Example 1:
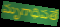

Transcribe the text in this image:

మృగాధిపతే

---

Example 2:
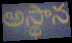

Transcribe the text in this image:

అస్థాన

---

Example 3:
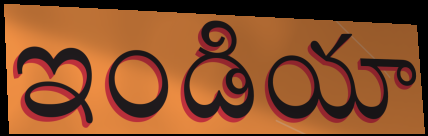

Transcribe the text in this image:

ఇండియా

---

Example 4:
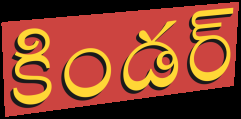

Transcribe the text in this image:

కిండర్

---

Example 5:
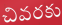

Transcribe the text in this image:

చివరకు